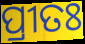
ପ୍ରୀତଃ